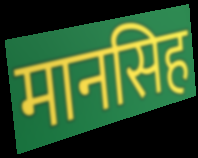
मानसिह